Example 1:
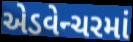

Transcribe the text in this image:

એડવેન્ચરમાં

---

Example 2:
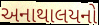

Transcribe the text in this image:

અનાથાલયનો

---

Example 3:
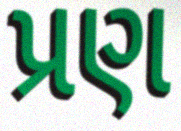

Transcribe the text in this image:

પ્રણ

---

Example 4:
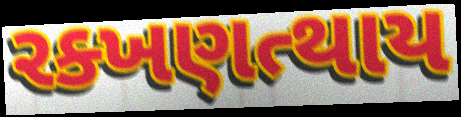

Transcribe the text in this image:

રક્ખણત્થાય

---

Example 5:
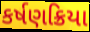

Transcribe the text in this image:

કર્ષણક્રિયા